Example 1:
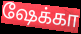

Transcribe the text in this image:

ஷேக்கா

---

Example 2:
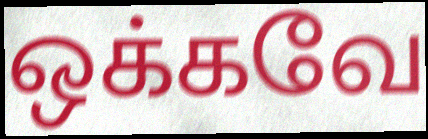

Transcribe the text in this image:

ஒக்கவே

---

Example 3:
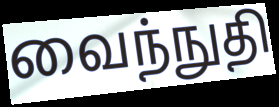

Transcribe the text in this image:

வைந்நுதி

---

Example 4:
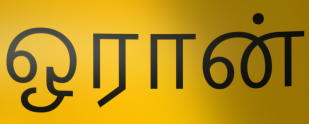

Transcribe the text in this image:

ஒரான்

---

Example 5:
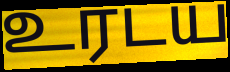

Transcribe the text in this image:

உரடய